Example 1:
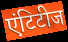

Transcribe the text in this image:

एंटिटीज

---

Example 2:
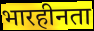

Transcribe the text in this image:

भारहीनता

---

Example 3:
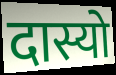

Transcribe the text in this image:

दास्यो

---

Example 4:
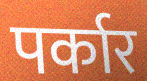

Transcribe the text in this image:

पर्कार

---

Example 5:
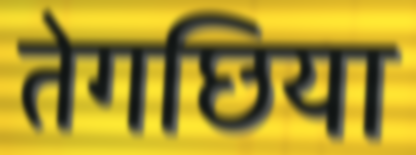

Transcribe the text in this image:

तेगछिया